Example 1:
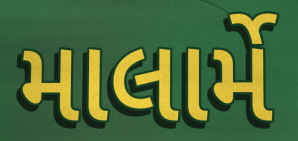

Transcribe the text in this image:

માલાર્મે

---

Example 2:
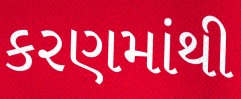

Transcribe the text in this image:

કરણમાંથી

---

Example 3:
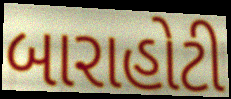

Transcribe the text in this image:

બારાહોટી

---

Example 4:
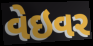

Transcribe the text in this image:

વેઇવર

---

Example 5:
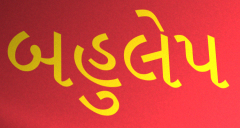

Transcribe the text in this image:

બહુલેપ